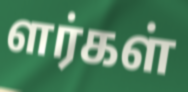
ளர்கள்